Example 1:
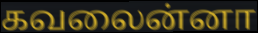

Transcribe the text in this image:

கவலைன்னா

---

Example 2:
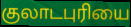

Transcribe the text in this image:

குலாடபுரியை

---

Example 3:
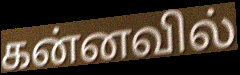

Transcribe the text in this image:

கன்னவில்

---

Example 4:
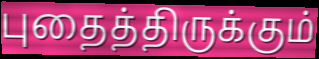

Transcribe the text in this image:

புதைத்திருக்கும்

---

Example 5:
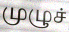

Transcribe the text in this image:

முழுச்